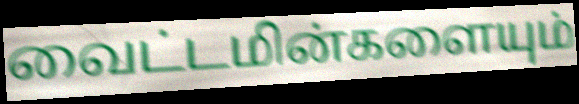
வைட்டமின்களையும்